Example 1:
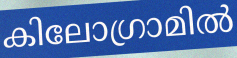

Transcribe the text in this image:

കിലോഗ്രാമിൽ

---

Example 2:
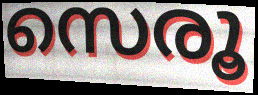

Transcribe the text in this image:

സെരൂ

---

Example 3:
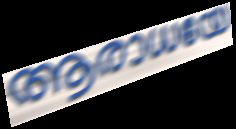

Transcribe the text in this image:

ആരാധയേ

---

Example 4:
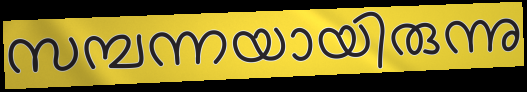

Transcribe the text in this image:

സമ്പന്നയായിരുന്നു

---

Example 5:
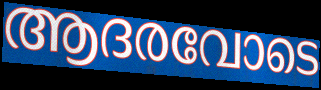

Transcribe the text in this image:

ആദരവോടെ